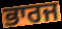
ਭਾਰਜ